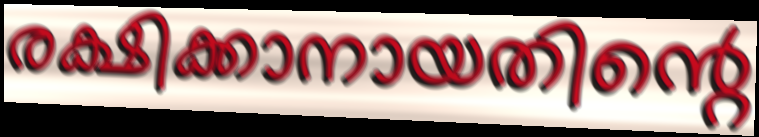
രക്ഷിക്കാനായതിന്റെ